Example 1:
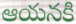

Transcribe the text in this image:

ఆయనకి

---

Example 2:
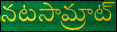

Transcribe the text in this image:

నటసామ్రాట్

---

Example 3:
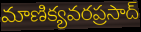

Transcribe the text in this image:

మాణిక్యవరప్రసాద్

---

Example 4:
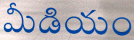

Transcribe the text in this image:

మీడియం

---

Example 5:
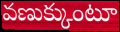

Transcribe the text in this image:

వణుక్కుంటూ